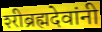
श्रीब्रह्मदेवांनी